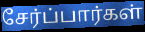
சேர்ப்பார்கள்